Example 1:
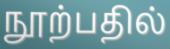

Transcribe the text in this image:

நூற்பதில்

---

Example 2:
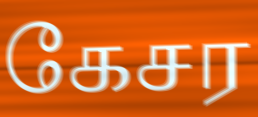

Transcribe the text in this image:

கேசர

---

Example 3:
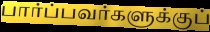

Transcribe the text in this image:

பார்ப்பவர்களுக்குப்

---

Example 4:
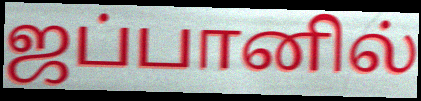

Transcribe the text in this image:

ஜப்பானில்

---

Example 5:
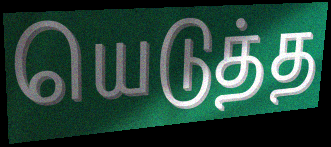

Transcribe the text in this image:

யெடுத்த